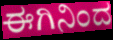
ಈಗಿನಿಂದ